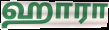
ஹாரா